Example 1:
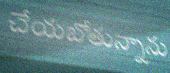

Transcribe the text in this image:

చేయబోతున్నాను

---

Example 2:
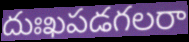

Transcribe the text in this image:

దుఃఖపడగలరా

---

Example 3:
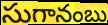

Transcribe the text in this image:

సుగానంబు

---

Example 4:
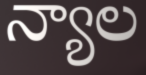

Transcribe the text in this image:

న్యాల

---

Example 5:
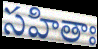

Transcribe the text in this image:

సహితాః